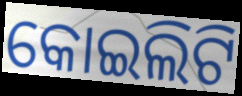
କୋଇଲିଟି